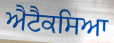
ਐਟੈਕਸਿਆ